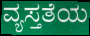
ವ್ಯಸ್ತತೆಯ